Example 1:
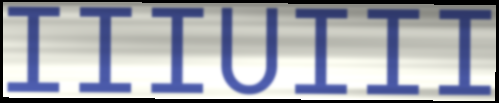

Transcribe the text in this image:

IIIUIII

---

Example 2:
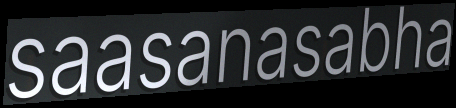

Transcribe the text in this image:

saasanasabha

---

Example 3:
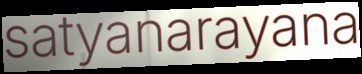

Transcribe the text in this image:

satyanarayana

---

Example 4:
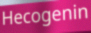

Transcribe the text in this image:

Hecogenin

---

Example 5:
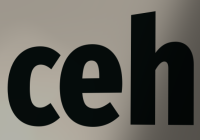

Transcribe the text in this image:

ceh